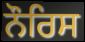
ਨੌਰਿਸ